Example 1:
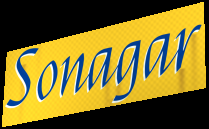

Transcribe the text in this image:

Sonagar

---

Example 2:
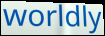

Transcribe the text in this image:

worldly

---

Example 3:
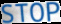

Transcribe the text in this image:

STOP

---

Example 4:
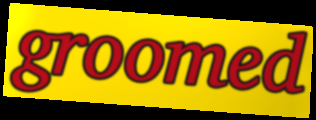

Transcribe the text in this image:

groomed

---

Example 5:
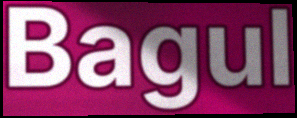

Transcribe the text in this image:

Bagul